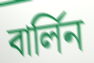
বাৰ্লিন